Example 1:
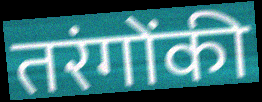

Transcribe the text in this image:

तरंगोंकी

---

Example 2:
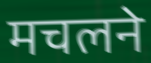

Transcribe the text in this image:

मचलने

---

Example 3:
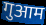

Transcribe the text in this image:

गुआम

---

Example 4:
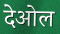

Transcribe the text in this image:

देओल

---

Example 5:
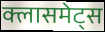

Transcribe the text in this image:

क्लासमेट्स